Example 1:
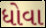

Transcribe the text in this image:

ધોવા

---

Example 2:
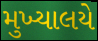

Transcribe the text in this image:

મુખ્યાલયે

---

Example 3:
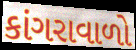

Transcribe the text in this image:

કાંગરાવાળો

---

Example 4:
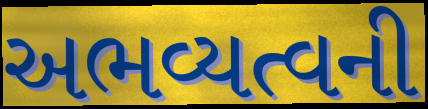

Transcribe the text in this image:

અભવ્યત્વની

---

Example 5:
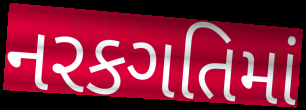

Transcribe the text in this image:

નરકગતિમાં